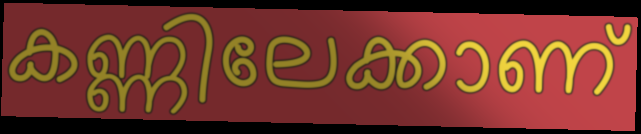
കണ്ണിലേക്കാണ്